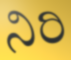
ನಿರಿ